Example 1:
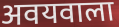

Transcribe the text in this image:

अवयवाला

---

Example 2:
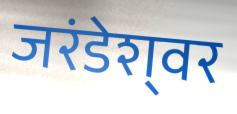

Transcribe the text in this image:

जरंडेश्वर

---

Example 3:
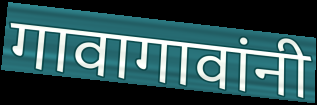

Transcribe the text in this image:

गावागावांनी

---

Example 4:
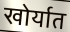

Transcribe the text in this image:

खोर्यात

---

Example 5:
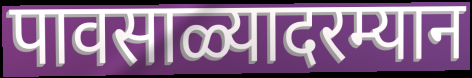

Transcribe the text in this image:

पावसाळ्यादरम्यान